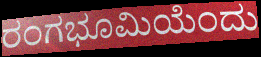
ರಂಗಭೂಮಿಯೆಂದು